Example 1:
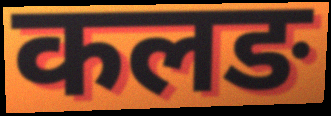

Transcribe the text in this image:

कलङ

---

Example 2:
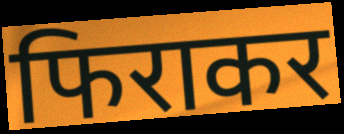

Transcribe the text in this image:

फिराकर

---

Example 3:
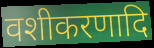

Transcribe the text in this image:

वशीकरणादि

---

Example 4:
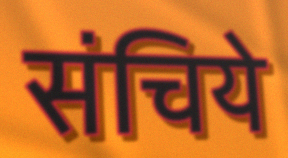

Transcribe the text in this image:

संचिये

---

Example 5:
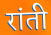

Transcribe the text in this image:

रांती